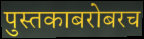
पुस्तकाबरोबरच